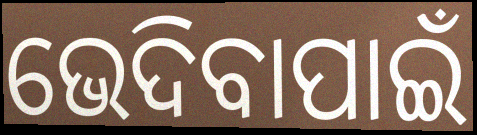
ଭେଦିବାପାଇଁ